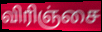
விரிஞ்சை